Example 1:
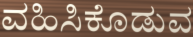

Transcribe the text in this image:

ವಹಿಸಿಕೊಡುವ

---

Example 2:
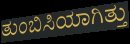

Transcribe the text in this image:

ತುಂಬಿಸಿಯಾಗಿತ್ತು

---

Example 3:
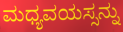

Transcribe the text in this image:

ಮಧ್ಯವಯಸ್ಸನ್ನು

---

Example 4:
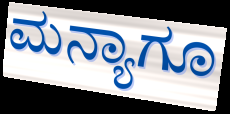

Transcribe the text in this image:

ಮನ್ಯಾಗೂ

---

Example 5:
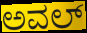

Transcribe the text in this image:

ಅವಲ್